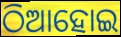
ଠିଆହୋଇ